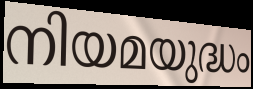
നിയമയുദ്ധം